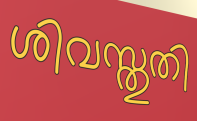
ശിവസ്തുതി